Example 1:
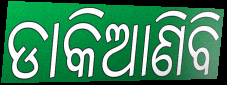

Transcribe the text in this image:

ଡାକିଆଣିବି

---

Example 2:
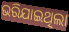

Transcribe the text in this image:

ଭରିଯାଇଥିଲା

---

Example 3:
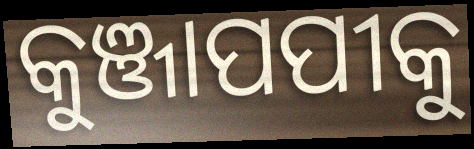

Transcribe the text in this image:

କୁଞ୍ଜାପପୀକୁ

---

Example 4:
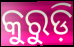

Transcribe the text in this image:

କୁରୁଡ଼ି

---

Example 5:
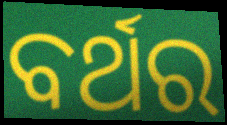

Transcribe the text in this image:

ବର୍ଥର